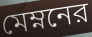
মেম্ননের